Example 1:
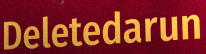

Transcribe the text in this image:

Deletedarun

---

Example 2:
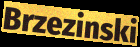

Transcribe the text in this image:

Brzezinski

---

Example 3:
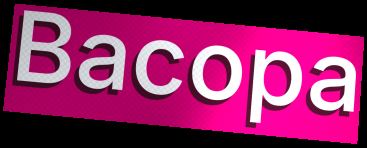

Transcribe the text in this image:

Bacopa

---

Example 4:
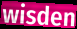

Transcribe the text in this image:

wisden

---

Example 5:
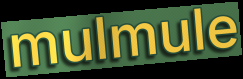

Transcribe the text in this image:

mulmule